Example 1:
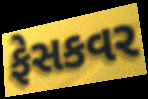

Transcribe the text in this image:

ફેસકવર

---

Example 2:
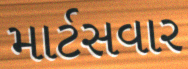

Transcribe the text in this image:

માર્ટસવાર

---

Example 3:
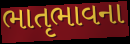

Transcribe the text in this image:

ભાતૃભાવના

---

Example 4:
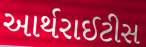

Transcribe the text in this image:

આર્થરાઈટીસ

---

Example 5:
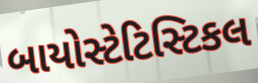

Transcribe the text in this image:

બાયોસ્ટેટિસ્ટિકલ